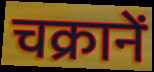
चक्रानें